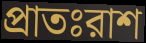
প্রাতঃরাশ